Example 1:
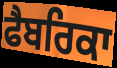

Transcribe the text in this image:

ਫੈਬਰਿਕਾ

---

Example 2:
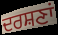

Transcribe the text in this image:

ਦਰਸ਼ਣਾਂ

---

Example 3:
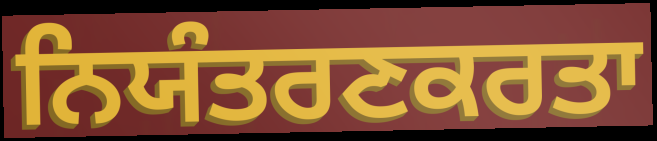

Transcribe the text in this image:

ਨਿਯੰਤਰਣਕਰਤਾ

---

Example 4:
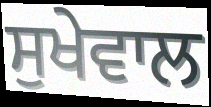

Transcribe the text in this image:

ਸੁਖੇਵਾਲ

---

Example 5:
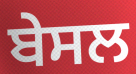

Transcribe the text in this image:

ਬੇਸਲ